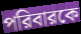
পরিবারকে